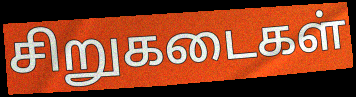
சிறுகடைகள்